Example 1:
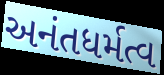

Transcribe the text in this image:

અનંતધર્મત્વ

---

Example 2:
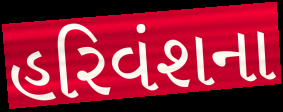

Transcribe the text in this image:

હરિવંશના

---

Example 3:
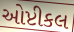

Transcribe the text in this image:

ઓપ્ટીકલ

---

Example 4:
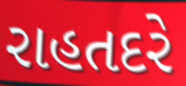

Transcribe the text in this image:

રાહતદરે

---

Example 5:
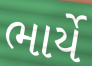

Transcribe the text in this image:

ભાર્યે